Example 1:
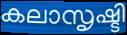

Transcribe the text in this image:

കലാസൃഷ്ടി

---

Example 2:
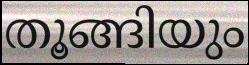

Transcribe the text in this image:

തൂങ്ങിയും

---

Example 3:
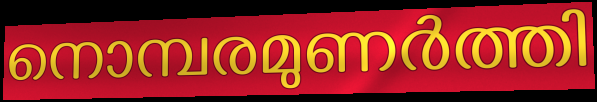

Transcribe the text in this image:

നൊമ്പരമുണർത്തി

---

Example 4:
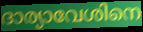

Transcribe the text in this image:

ദാര്യാവേശിനെ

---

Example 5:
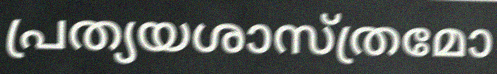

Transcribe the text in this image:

പ്രത്യയശാസ്ത്രമോ